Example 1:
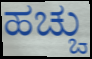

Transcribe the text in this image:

ಹಚ್ಚು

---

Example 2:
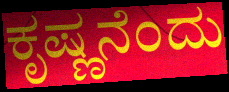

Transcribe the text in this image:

ಕೃಷ್ಣನೆಂದು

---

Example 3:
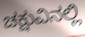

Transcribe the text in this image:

ಚಕ್ಷುವಿನಲ್ಲಿ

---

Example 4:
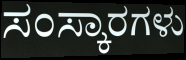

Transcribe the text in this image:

ಸಂಸ್ಕಾರಗಳು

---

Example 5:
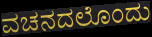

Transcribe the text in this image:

ವಚನದಲೊಂದು